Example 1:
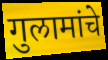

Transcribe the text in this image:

गुलामांचे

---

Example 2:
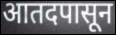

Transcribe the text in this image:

आतदपासून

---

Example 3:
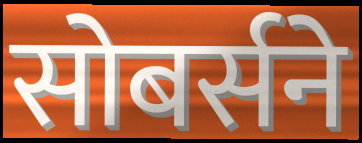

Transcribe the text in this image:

सोबर्सने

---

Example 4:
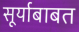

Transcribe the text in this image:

सूर्याबाबत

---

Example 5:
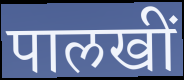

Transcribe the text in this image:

पालखीं